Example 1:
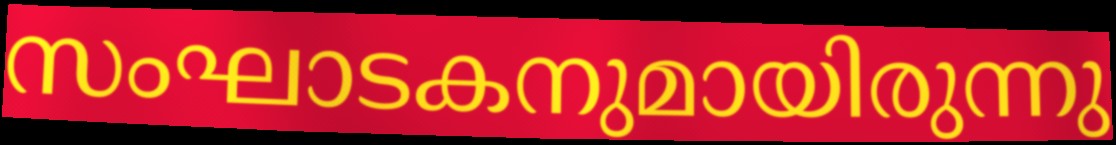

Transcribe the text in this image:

സംഘാടകനുമായിരുന്നു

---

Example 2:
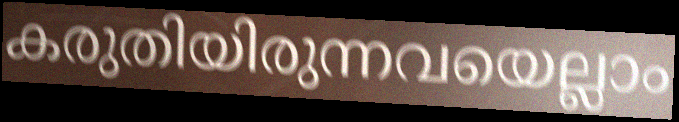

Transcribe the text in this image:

കരുതിയിരുന്നവയെല്ലാം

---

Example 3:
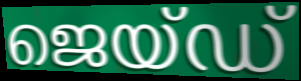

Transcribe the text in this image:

ജെയ്ഡ്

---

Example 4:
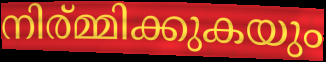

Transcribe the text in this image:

നിര്മ്മിക്കുകയും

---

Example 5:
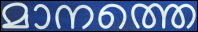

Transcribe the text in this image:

മാനത്തെ